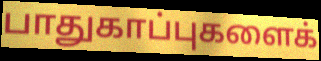
பாதுகாப்புகளைக்